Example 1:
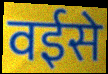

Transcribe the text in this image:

वईसे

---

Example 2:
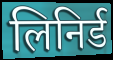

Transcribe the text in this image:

लिनिर्ड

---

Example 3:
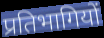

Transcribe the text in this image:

प्रतिभागियों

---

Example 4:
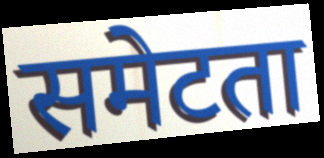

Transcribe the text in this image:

समेटता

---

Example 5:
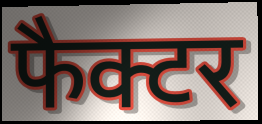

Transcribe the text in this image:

फैक्टर